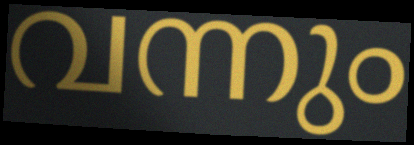
വന്നും